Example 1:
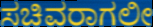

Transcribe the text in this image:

ಸಚಿವರಾಗಲೀ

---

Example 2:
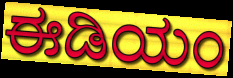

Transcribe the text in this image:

ಈಡಿಯಂ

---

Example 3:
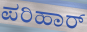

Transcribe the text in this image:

ಪರಿಹಾರ್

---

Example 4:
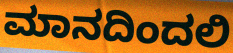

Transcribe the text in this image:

ಮಾನದಿಂದಲಿ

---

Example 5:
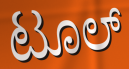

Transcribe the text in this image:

ಟೂಲ್